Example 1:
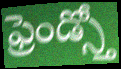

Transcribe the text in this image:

ఫ్రెండ్స్తో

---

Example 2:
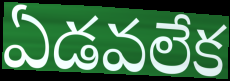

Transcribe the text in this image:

ఏడవలేక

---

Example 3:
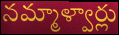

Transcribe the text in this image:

నమ్మాళ్వార్లు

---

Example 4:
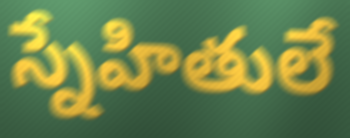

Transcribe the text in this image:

స్నేహితులే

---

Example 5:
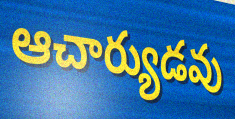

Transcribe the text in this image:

ఆచార్యుడవు